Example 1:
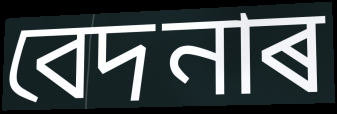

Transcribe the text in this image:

বেদনাৰ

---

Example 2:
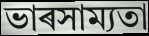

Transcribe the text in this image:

ভাৰসাম্যতা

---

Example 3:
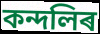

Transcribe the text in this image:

কন্দলিৰ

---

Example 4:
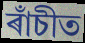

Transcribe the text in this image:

ৰাঁচীত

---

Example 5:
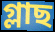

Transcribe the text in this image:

গ্লাছ